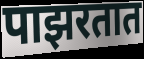
पाझरतात